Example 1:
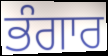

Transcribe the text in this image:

ਭੰਗਾਰ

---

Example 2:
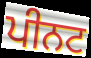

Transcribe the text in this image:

ਪੀਨਟ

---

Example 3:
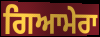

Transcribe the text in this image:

ਗਿਆਮੇਰਾ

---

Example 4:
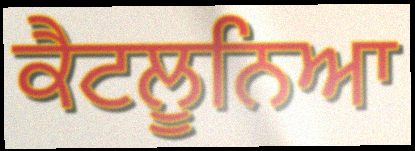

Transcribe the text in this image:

ਕੈਟਲੂਨਿਆ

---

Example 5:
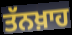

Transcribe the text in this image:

ਤੱਨਖ਼ਾਹ